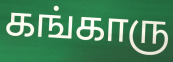
கங்காரு